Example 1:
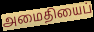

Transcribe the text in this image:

அமைதியைப்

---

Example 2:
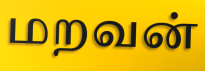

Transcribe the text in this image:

மறவன்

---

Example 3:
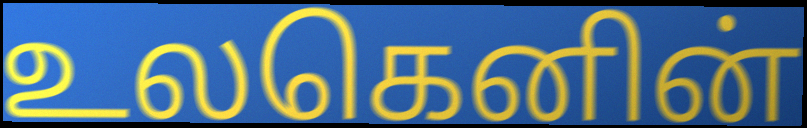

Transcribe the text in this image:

உலகெனின்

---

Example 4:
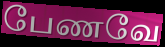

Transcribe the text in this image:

பேணவே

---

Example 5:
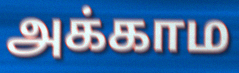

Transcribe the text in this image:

அக்காம